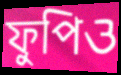
ফুপিও